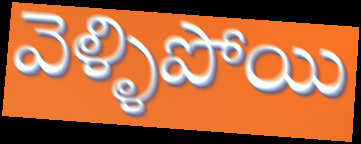
వెళ్ళిపోయి